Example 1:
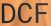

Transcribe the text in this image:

DCF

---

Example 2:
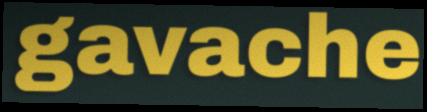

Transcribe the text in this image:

gavache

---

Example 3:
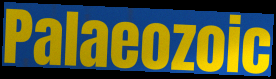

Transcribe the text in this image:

Palaeozoic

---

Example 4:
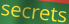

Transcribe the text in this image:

secrets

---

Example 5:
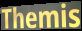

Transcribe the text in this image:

Themis